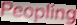
Peopling